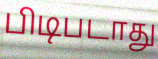
பிடிபடாது